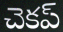
చెకప్